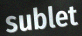
sublet